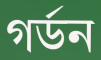
গৰ্ডন